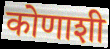
कोणाशी